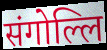
संगोल्लि